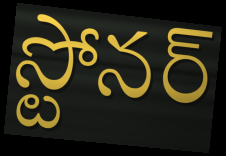
స్టోనర్